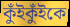
কুঁইকুঁইকে